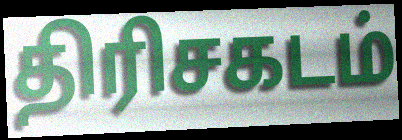
திரிசகடம்